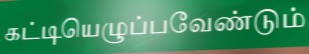
கட்டியெழுப்பவேண்டும்